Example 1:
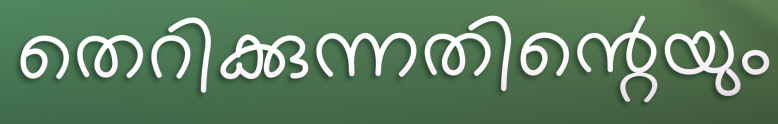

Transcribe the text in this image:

തെറിക്കുന്നതിന്റെയും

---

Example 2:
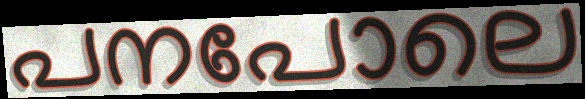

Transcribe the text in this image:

പനപോലെ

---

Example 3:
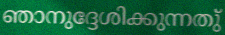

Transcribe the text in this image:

ഞാനുദ്ദേശിക്കുന്നതു്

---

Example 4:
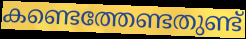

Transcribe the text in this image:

കണ്ടെത്തേണ്ടതുണ്ട്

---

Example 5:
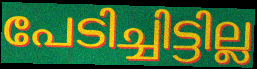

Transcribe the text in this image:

പേടിച്ചിട്ടില്ല